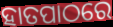
ହାତପାଠରେ